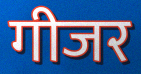
गीजर